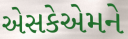
એસકેએમને